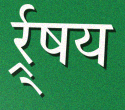
र्र्र्षय